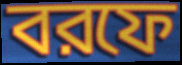
বরফে